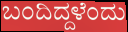
ಬಂದಿದ್ದಳೆಂದು